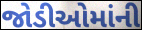
જોડીઓમાંની